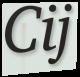
Cij